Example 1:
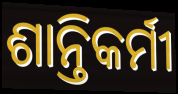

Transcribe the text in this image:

ଶାନ୍ତିକର୍ମୀ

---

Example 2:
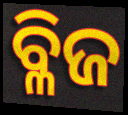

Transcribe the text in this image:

ବ୍ଳିଜ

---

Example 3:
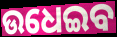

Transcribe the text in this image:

ଉଧେଇବ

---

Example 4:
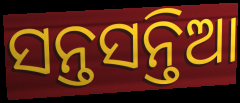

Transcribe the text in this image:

ସନ୍ତସନ୍ତିଆ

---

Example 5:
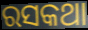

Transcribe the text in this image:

ରସକଥା